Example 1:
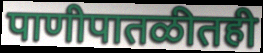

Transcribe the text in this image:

पाणीपातळीतही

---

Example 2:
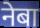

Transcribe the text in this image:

नेबा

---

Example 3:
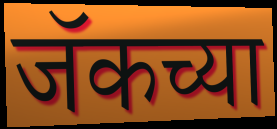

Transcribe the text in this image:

जॅकच्या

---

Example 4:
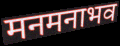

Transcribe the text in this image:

मनमनाभव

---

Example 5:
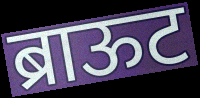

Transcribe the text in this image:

ब्राऊट